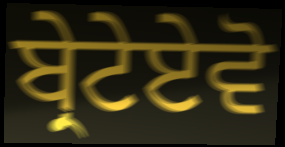
ਬ੍ਰੇਟੇਏਵੋ